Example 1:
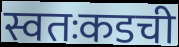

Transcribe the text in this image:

स्वतःकडची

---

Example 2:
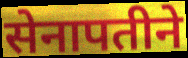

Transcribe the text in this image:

सेनापतीने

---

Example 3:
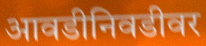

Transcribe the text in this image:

आवडीनिवडीवर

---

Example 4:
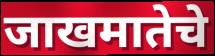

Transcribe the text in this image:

जाखमातेचे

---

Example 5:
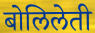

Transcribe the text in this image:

बोलिलेती